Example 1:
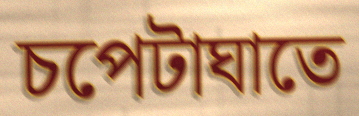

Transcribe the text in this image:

চপেটাঘাতে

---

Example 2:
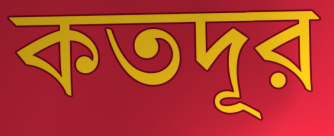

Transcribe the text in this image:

কতদূর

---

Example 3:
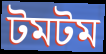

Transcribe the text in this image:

টমটম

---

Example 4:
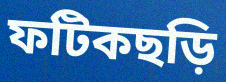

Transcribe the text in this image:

ফটিকছড়ি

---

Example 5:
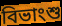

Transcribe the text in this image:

বিভাংশু